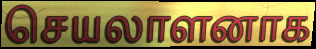
செயலாளனாக